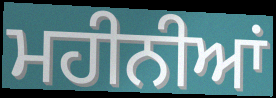
ਮਹੀਨੀਆਂ